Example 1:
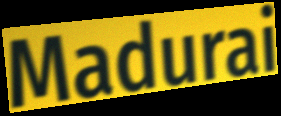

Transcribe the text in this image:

Madurai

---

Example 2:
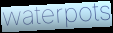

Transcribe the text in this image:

waterpots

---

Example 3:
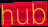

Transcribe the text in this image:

hub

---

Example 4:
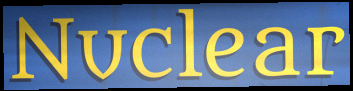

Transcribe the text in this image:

Nuclear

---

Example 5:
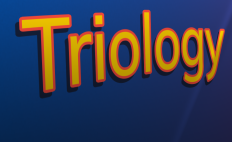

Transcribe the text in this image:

Triology